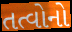
તત્વોનો